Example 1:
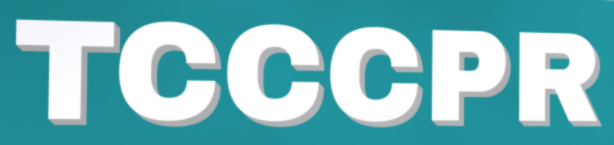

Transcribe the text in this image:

TCCCPR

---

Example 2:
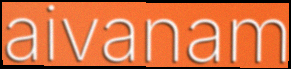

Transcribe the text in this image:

aivanam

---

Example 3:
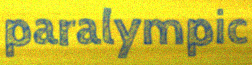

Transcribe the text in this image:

paralympic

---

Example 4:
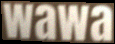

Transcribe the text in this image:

wawa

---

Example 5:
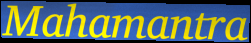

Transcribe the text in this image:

Mahamantra